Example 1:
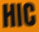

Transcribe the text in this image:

HIC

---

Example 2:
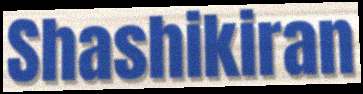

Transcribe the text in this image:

Shashikiran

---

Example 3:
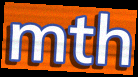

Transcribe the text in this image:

mth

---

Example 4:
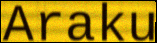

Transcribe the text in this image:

Araku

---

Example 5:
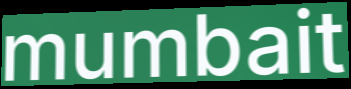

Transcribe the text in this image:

mumbait